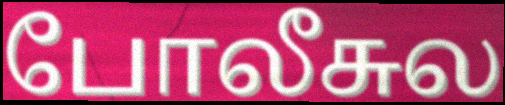
போலீசுல